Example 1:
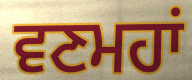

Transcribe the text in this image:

ਵਣਮਹਾਂ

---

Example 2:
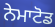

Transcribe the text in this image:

ਨੇਮਾਟੋਡ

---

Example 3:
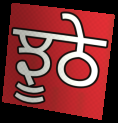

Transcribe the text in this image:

ਝੂਠੇ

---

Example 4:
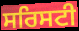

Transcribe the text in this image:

ਸਰਿਸਟੀ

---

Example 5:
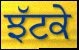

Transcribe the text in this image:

ਝੱਟਕੇ